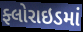
ફ્લોરાઇડમાં